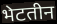
भेटतीन